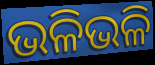
ଭଳିଭଳି